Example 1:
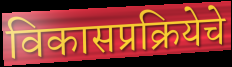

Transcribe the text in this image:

विकासप्रक्रियेचे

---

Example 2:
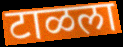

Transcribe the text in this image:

टाळला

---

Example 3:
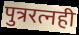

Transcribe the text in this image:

पुत्ररत्नही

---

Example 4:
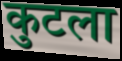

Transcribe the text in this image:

कुटला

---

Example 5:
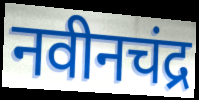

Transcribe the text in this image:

नवीनचंद्र